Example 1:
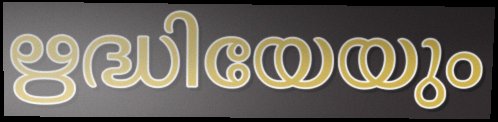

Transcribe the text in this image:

ഋദ്ധിയേയും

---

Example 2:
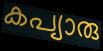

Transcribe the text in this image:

കപ്യാരു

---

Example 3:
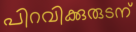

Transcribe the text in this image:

പിറവിക്കുരുടന്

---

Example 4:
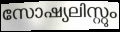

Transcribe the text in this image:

സോഷ്യലിസ്റ്റും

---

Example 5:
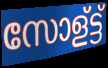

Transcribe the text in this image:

സോള്ട്ട്